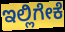
ಇಲ್ಲಿಗೇಕೆ